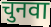
चुनवा